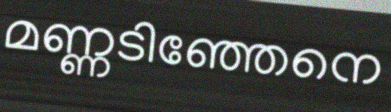
മണ്ണടിഞ്ഞേനെ